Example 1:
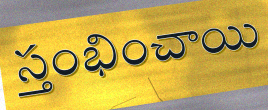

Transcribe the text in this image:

స్తంభించాయి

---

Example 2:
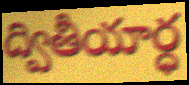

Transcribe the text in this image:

ద్వితీయార్ధ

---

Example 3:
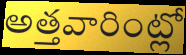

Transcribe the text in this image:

అత్తవారింట్లో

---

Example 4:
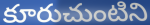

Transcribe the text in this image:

కూరుచుంటిని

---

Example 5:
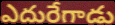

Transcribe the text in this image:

ఎదురేగాడు